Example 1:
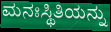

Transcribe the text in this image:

ಮನಃಸ್ಥಿತಿಯನ್ನು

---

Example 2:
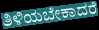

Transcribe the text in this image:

ತಿಳಿಯಬೇಕಾದರೆ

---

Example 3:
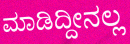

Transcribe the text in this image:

ಮಾಡಿದ್ದೀನಲ್ಲ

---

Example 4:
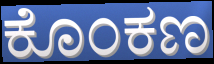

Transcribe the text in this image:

ಕೊಂಕಣ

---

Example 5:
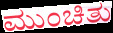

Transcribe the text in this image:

ಮುಂಚಿತು